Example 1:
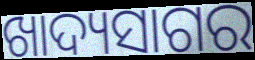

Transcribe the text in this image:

ଖାଦ୍ୟସାଗର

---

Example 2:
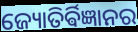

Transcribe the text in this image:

ଜ୍ୟୋତିର୍ଵିଜ୍ଞାନର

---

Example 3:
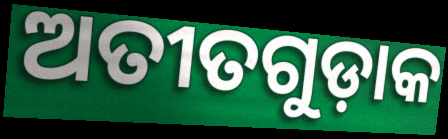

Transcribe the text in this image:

ଅତୀତଗୁଡ଼ାକ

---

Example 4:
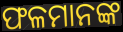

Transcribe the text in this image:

ଫଳମାନଙ୍କ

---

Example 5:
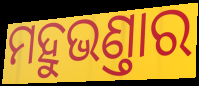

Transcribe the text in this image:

ମହୁଭଣ୍ତାର